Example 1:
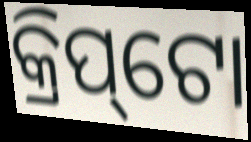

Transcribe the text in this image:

କ୍ରିପ୍‌ଟୋ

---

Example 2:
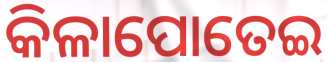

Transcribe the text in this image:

କିଳାପୋତେଇ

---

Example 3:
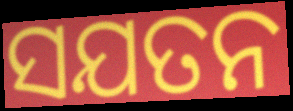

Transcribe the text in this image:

ସଯତନ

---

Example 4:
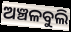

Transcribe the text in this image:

ଅଞ୍ଚଳବୁଲି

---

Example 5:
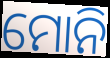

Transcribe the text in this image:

ମୋନି